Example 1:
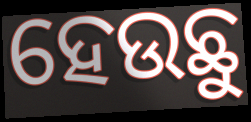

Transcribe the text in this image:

ହେଉଛୁ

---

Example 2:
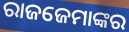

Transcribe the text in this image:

ରାଜଜେମାଙ୍କର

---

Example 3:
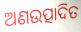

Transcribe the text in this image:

ଅଣଉତ୍ପାଦିତ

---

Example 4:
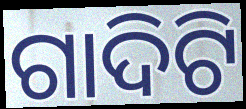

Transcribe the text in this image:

ଗାଦିଟି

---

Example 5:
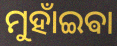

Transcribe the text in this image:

ମୁହାଁଇଵା